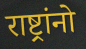
राष्ट्रांनो